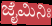
ಜೈಮಿನಿಃ